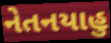
નેતનયાહુ